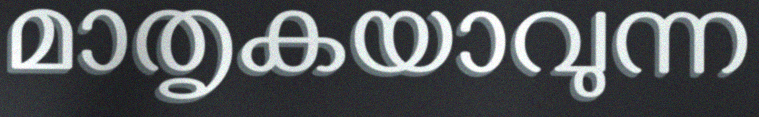
മാതൃകയാവുന്ന